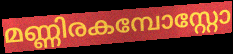
മണ്ണിരകമ്പോസ്റ്റോ